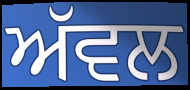
ਅੱਵਲ